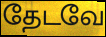
தேடவே